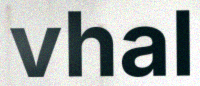
vhal